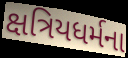
ક્ષત્રિયધર્મના